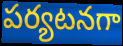
పర్యటనగా